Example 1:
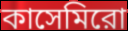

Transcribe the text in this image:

কাসেমিরো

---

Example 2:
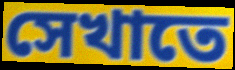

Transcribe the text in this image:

সেখাতে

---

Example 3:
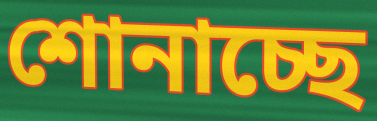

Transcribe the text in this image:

শোনাচ্ছে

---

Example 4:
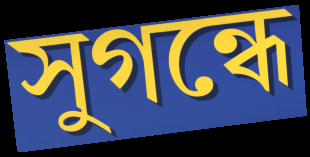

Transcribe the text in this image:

সুগন্ধে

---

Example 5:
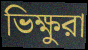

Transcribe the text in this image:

ভিক্ষুরা